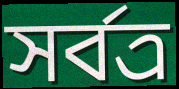
সৰ্বত্ৰ